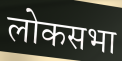
लोकसभा